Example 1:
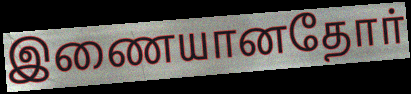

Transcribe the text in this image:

இணையானதோர்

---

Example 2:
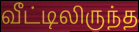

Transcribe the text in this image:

வீட்டிலிருந்த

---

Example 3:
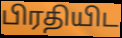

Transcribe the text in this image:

பிரதியிட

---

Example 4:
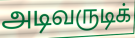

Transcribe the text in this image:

அடிவருடிக்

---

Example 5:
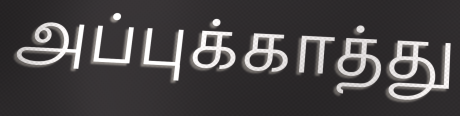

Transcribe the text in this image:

அப்புக்காத்து